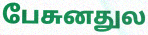
பேசுனதுல